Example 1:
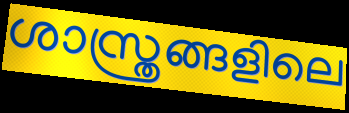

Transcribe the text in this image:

ശാസ്ത്രങ്ങളിലെ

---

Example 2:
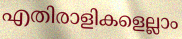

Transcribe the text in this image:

എതിരാളികളെല്ലാം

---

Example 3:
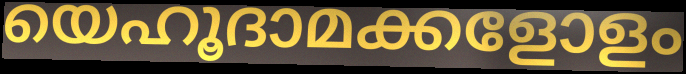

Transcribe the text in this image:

യെഹൂദാമക്കളോളം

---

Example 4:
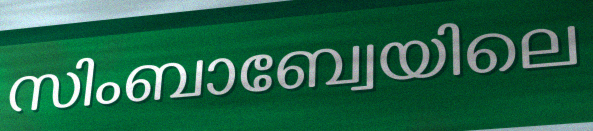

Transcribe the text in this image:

സിംബാബ്വേയിലെ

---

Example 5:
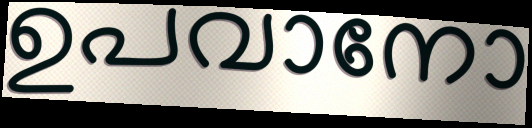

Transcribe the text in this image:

ഉപവാനോ